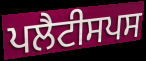
ਪਲੈਟੀਸਪਸ